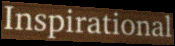
Inspirational